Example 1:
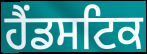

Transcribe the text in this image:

ਹੈਂਡਸਟਿਕ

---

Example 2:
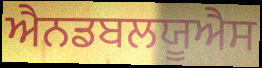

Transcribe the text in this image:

ਐਨਡਬਲਯੂਐਸ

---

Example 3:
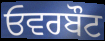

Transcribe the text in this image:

ਓਵਰਬੌਟ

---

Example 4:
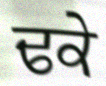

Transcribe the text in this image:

ਢਕੇ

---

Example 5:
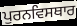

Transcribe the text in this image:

ਪੁਰਨਵਿਸਥਾਰ